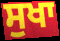
ਸੁਖਾ